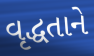
વૃદ્ધતાને